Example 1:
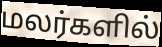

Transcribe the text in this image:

மலர்களில்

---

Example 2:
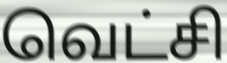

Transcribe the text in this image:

வெட்சி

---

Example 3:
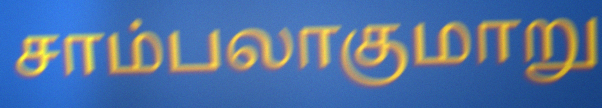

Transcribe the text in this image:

சாம்பலாகுமாறு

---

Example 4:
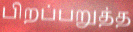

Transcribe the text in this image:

பிறப்பறுத்த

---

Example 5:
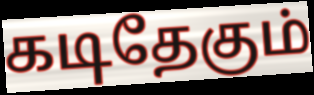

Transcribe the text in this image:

கடிதேகும்